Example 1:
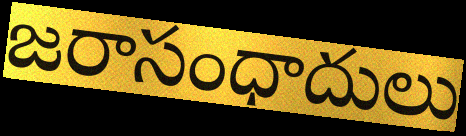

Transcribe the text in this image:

జరాసంధాదులు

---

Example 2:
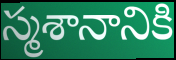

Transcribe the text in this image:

స్మశానానికి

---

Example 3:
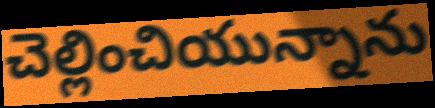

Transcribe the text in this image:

చెల్లించియున్నాను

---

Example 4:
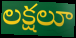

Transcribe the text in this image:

లక్షలూ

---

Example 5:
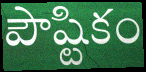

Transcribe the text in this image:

పౌష్టికం